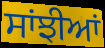
ਸਾਂਝੀਆਂ